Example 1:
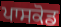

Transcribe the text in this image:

ਪਾਸਕੋਡ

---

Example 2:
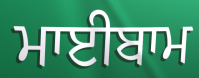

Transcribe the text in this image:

ਮਾਈਬਾਮ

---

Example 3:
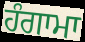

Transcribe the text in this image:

ਹੰਗਾਮਾ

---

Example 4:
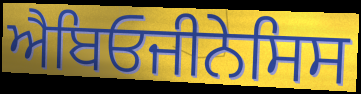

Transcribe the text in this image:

ਐਬਿਓਜੀਨੇਸਿਸ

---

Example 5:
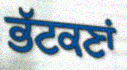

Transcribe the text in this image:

ਭੱਟਕਣਾਂ